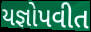
યજ્ઞોપવીત